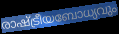
രാഷ്ട്രീയബോധ്യവും